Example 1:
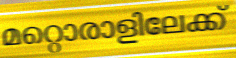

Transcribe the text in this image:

മറ്റൊരാളിലേക്ക്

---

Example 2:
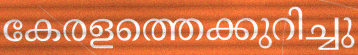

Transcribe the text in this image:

കേരളത്തെക്കുറിച്ചു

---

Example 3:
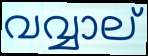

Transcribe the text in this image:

വവ്വാല്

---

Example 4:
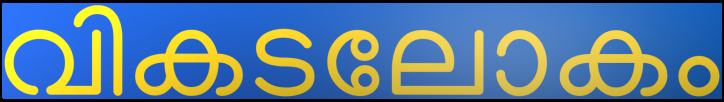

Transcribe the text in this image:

വികടലോകം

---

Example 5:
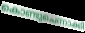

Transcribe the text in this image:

കൊണ്ടുചെന്നാക്കി